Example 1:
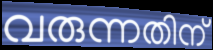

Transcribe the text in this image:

വരുന്നതിന്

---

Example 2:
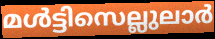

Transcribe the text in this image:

മൾട്ടിസെല്ലുലാർ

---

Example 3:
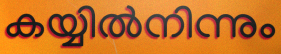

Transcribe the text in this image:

കയ്യിൽനിന്നും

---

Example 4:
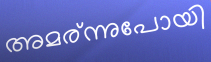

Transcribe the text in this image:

അമര്ന്നുപോയി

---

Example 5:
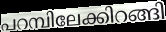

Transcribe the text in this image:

പറമ്പിലേക്കിറങ്ങി